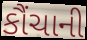
કૌંચાની